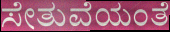
ಸೇತುವೆಯಂತೆ